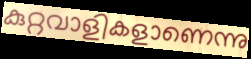
കുറ്റവാളികളാണെന്നു